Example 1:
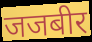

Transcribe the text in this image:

जजबीर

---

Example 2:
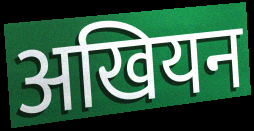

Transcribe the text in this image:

अखियन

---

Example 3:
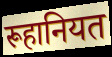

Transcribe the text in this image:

रूहानियत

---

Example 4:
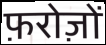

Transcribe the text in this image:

फ़रोज़ों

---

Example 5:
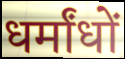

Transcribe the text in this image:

धर्मांधों